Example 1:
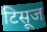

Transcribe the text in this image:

टिसूज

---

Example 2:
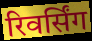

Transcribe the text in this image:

रिवर्सिंग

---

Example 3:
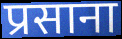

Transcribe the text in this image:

प्रसाना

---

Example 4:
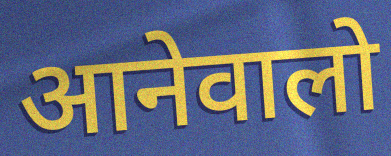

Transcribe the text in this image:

आनेवालो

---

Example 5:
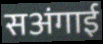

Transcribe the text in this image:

सअंगाई